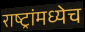
राष्ट्रांमध्येच